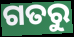
ଗତରୁ